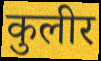
कुलीर